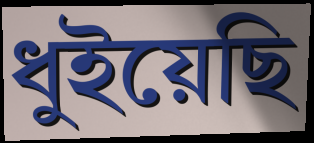
ধুইয়েছি